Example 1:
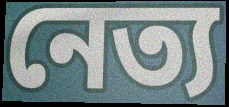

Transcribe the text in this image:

নেত্য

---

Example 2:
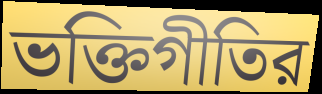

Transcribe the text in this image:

ভক্তিগীতির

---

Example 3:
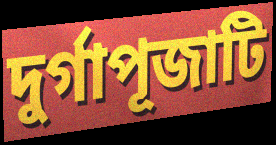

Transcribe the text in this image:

দুর্গাপূজাটি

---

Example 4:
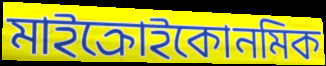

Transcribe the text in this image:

মাইক্রোইকোনমিক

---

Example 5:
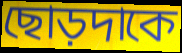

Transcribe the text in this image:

ছোড়দাকে